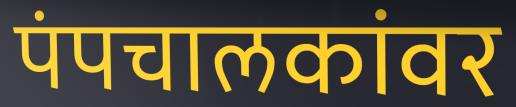
पंपचालकांवर